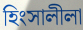
হিংসালীলা